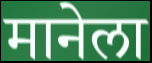
मानेला